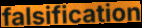
falsification